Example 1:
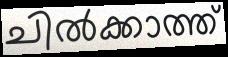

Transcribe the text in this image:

ചിൽക്കാത്ത്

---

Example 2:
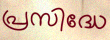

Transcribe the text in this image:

പ്രസിദ്ധേ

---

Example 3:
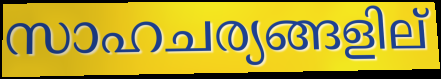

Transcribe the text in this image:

സാഹചര്യങ്ങളില്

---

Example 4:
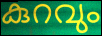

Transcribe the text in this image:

കുറവും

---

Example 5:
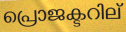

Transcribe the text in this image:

പ്രൊജക്ടറില്